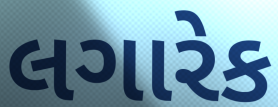
લગારેક